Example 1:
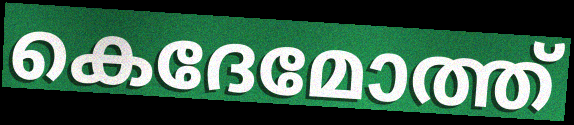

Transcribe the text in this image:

കെദേമോത്ത്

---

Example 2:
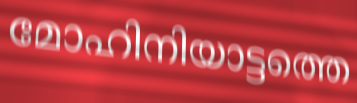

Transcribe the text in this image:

മോഹിനിയാട്ടത്തെ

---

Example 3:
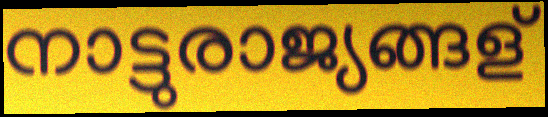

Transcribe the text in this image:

നാട്ടുരാജ്യങ്ങള്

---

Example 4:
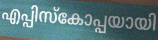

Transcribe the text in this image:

എപ്പിസ്കോപ്പയായി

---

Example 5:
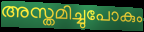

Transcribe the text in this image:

അസ്തമിച്ചുപോകും